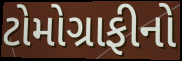
ટોમોગ્રાફીનો